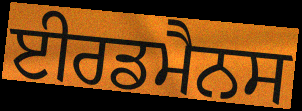
ਈਰਡਮੈਨਸ